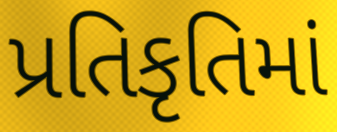
પ્રતિકૃતિમાં